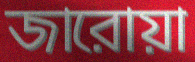
জারোয়া